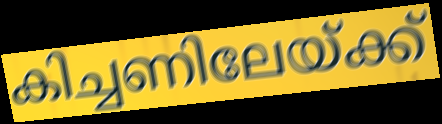
കിച്ചണിലേയ്ക്ക്